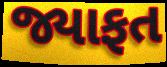
જ્યાફત